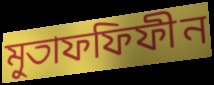
মুতাফফিফীন